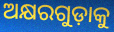
ଅକ୍ଷରଗୁଡ଼ାକୁ